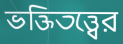
ভক্তিতত্ত্বের